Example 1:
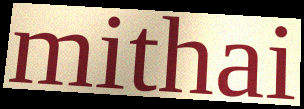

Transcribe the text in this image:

mithai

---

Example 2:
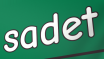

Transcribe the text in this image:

sadet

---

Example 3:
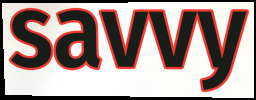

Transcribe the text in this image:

savvy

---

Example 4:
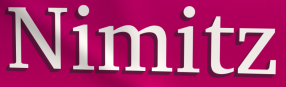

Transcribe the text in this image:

Nimitz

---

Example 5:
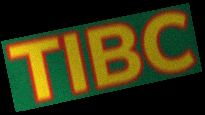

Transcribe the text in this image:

TIBC